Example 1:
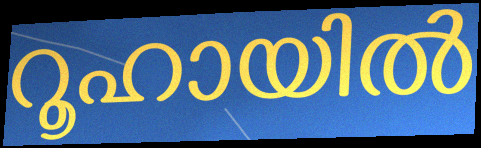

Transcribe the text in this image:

റൂഹായിൽ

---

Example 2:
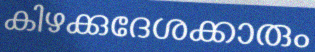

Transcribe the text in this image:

കിഴക്കുദേശക്കാരും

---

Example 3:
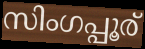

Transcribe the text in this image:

സിംഗപ്പൂര്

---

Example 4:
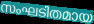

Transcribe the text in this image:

സംഘടിതമായ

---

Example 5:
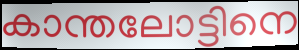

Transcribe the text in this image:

കാന്തലോട്ടിനെ